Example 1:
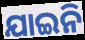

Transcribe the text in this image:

ଯାଇନି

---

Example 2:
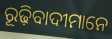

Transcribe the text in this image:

ରୂଢ଼ିବାଦୀମାନେ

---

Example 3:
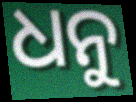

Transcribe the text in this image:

ଧନୁ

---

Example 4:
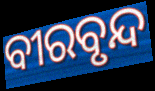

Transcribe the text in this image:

ବୀରବୃନ୍ଦ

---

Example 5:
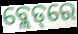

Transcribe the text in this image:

ବ୍ଲେଡ୍‌ରେ